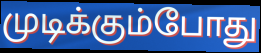
முடிக்கும்போது